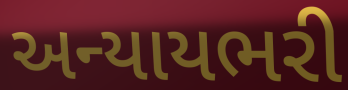
અન્યાયભરી